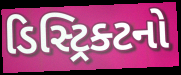
ડિસ્ટ્રિક્ટનો